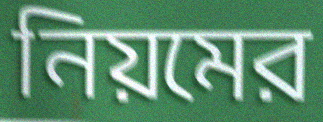
নিয়মের